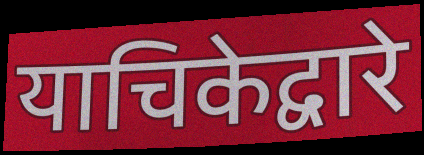
याचिकेद्वारे